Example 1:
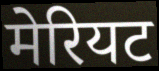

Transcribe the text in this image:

मेरियट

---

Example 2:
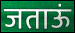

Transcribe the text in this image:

जताऊं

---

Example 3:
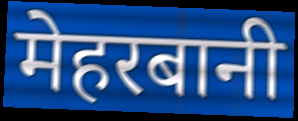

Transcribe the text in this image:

मेहरबानी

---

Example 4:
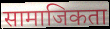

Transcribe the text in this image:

सामाजिकता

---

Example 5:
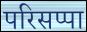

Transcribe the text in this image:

परिसप्पा